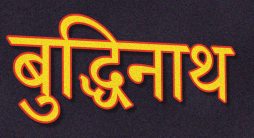
बुद्धिनाथ